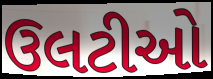
ઉલટીઓ